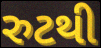
રુટથી